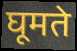
घूमते